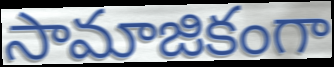
సామాజికంగా